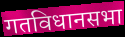
गतविधानसभा